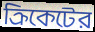
ক্রিকেটের